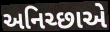
અનિચ્છાએ